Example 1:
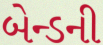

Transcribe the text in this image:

બેન્ડની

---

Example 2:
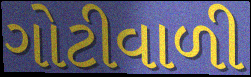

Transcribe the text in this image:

ગોટીવાળી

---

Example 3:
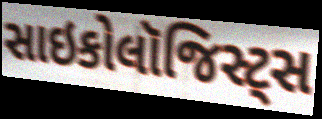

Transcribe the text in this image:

સાઇકોલૉજિસ્ટ્સ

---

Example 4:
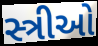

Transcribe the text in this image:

સ્ત્રીઓ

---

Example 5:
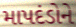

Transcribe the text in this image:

માપદંડોને